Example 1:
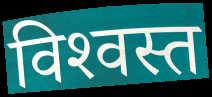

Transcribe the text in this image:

विश्‍वस्त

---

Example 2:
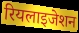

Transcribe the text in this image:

रियलाइजेशन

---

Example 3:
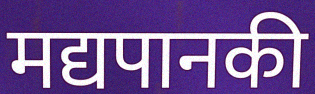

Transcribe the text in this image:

मद्यपानकी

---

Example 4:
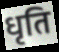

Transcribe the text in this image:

धृति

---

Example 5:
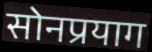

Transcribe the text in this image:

सोनप्रयाग